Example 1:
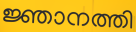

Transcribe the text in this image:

ജ്ഞാനത്തി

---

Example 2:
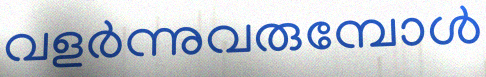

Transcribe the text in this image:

വളർന്നുവരുമ്പോൾ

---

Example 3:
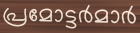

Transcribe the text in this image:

പ്രമോട്ടർമാർ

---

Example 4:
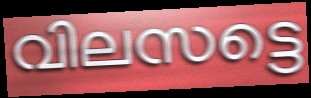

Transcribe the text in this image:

വിലസട്ടെ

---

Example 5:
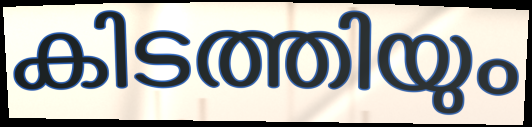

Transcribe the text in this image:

കിടത്തിയും